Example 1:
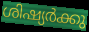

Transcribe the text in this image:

ശിഷ്യർക്കു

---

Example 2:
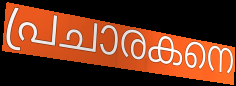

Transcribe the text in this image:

പ്രചാരകനെ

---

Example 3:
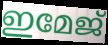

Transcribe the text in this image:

ഇമേജ്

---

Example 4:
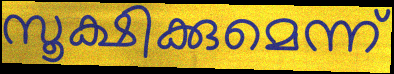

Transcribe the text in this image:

സൂക്ഷിക്കുമെന്ന്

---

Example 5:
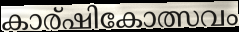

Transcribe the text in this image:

കാര്ഷികോത്സവം